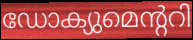
ഡോക്യുമെന്ററി